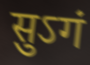
सुऽगं